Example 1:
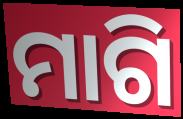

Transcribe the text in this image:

ମାଗି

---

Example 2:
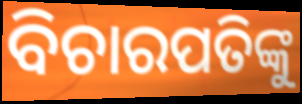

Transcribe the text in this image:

ବିଚାରପତିଙ୍କୁ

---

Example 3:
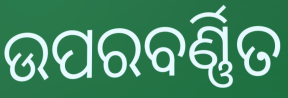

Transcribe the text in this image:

ଉପରବର୍ଣ୍ଣିତ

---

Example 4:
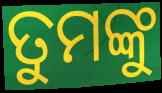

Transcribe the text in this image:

ତୁମଙ୍କୁ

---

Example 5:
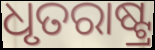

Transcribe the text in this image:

ଧୃତରାଷ୍ଟ୍ର